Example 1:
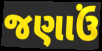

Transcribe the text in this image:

જણાઉં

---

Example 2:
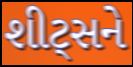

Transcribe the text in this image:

શીટ્સને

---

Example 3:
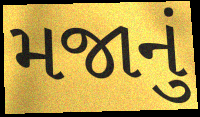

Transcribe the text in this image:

મજાનું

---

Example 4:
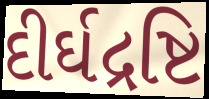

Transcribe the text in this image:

દીર્ઘદ્રષ્ટિ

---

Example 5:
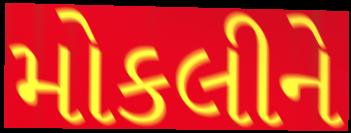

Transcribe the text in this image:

મોકલીને